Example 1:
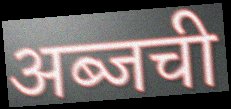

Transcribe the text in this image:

अब्जची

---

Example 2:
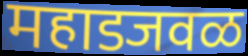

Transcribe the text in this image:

महाडजवळ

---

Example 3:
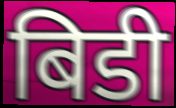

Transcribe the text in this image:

बिडी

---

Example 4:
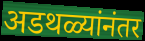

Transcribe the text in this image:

अडथळ्यांनंतर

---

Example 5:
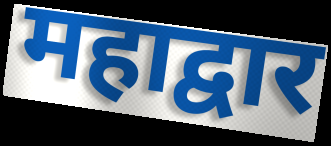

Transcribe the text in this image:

महाद्वार